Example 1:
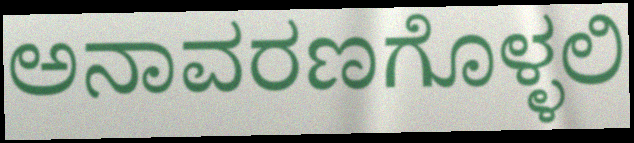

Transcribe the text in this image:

ಅನಾವರಣಗೊಳ್ಳಲಿ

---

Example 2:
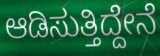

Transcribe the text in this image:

ಆಡಿಸುತ್ತಿದ್ದೇನೆ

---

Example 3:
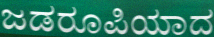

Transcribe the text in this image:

ಜಡರೂಪಿಯಾದ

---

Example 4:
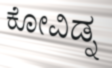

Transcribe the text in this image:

ಕೋವಿಡ್ನ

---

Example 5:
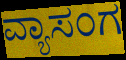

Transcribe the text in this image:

ವ್ಯಾಸಂಗ